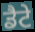
ਡੈਟੇ